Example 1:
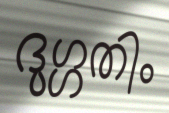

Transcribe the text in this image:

ദുഗ്ഗതിം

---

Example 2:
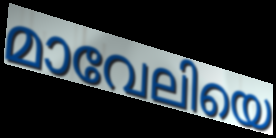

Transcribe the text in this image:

മാവേലിയെ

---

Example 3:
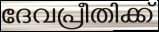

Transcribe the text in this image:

ദേവപ്രീതിക്ക്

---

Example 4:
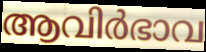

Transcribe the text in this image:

ആവിർഭാവ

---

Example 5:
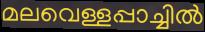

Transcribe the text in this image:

മലവെള്ളപ്പാച്ചിൽ